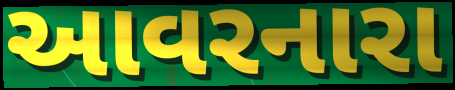
આવરનારા